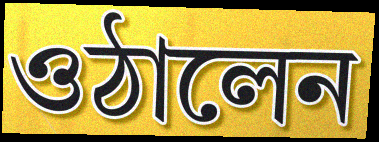
ওঠালেন